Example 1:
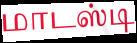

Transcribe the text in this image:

மாடஸ்டி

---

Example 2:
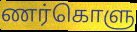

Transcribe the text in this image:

ணர்கொளு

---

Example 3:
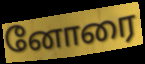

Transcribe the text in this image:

னோரை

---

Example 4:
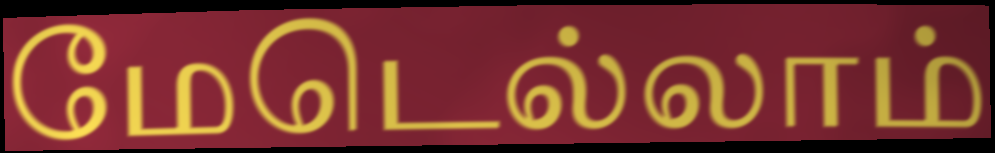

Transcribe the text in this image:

மேடெல்லாம்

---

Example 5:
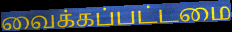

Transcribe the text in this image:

வைக்கப்பட்டமை